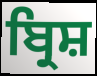
ਬ੍ਰਿਸ਼